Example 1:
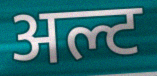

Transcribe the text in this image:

अल्ट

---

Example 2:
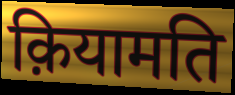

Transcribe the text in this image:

क़ियामति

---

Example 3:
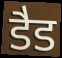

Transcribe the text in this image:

डैड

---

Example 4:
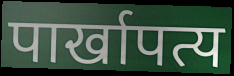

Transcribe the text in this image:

पार्खापत्य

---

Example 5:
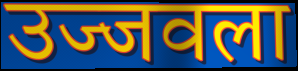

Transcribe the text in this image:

उज्‍जवला